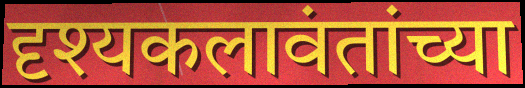
दृश्यकलावंतांच्या